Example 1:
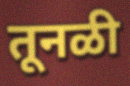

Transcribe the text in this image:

तूनळी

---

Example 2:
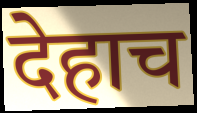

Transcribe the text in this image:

देहाच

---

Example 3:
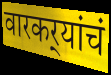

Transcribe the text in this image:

वारकर्यांचं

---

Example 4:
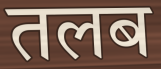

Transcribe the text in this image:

तलब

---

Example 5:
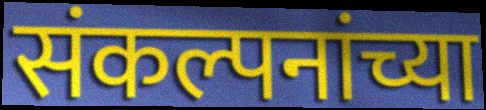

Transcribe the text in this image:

संकल्पनांच्या